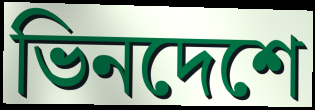
ভিনদেশে